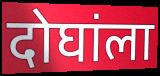
दोघांला